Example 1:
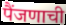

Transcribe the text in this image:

पैंजणाची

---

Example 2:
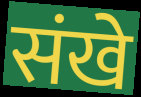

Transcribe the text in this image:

संखे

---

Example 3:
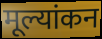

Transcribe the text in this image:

मूल्यांकन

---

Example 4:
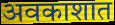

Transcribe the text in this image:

अवकाशात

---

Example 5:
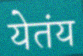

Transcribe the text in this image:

येतंय